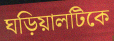
ঘড়িয়ালটিকে